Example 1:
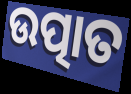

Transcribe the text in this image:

ଉତ୍ପାତ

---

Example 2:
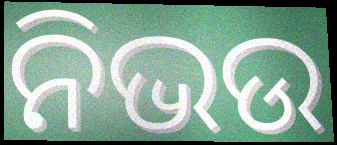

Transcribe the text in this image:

ନିଭଉ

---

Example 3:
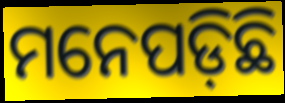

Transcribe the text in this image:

ମନେପଡ଼ିଛି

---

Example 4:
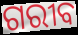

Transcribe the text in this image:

ଗରୀବ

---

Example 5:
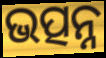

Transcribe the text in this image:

ଭତ୍ପନ୍ନ